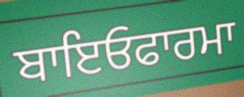
ਬਾਇਓਫਾਰਮਾ